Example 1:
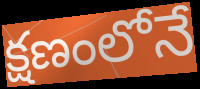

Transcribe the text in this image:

క్షణంలోనే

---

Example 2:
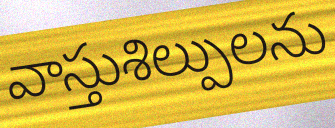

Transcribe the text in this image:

వాస్తుశిల్పులను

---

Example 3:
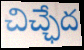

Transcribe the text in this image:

చిచ్ఛేద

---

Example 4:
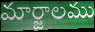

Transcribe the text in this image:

మార్జాలము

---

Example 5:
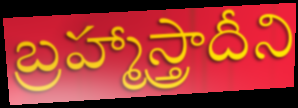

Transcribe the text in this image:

బ్రహ్మాస్త్రాదీని